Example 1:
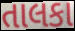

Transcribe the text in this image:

તાલકા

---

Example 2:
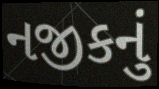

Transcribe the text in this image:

નજીકનું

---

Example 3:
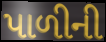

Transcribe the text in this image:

પાળીની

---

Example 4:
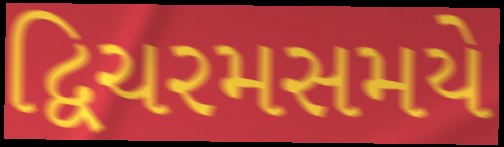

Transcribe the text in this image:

દ્વિચરમસમયે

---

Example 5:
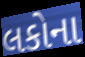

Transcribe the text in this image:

લકોના